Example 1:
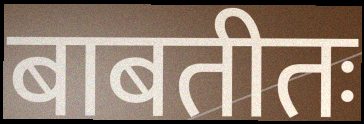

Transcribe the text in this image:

बाबतीतः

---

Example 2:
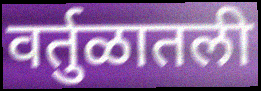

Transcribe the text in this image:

वर्तुळातली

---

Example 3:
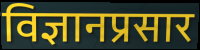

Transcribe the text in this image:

विज्ञानप्रसार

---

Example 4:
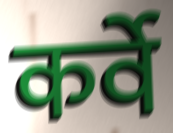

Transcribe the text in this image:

कर्वे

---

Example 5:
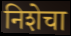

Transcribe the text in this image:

निशेचा